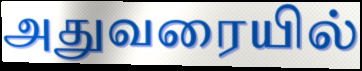
அதுவரையில்